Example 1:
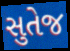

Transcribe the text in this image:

સુતેજ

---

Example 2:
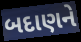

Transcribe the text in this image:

બદાણને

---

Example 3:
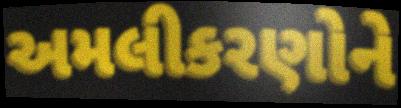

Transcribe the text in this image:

અમલીકરણોને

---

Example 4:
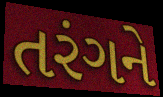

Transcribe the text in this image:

તરંગને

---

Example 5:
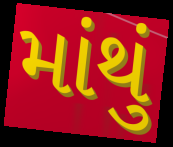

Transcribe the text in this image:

માંથું